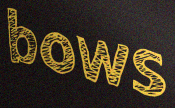
bows